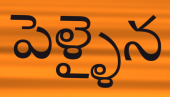
పెళ్ళైన